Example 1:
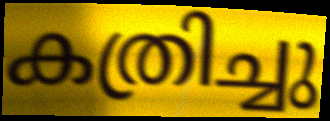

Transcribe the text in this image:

കത്രിച്ചു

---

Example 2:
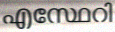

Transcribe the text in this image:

എസ്ഥേറി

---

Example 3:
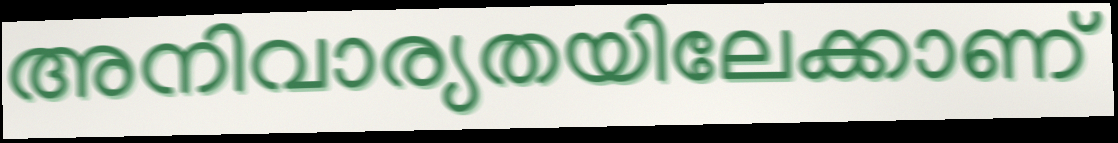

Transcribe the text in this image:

അനിവാര്യതയിലേക്കാണ്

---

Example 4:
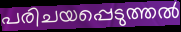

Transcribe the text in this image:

പരിചയപ്പെടുത്തൽ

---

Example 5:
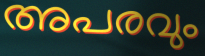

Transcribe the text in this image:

അപരവും